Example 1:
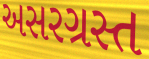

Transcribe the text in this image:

અસરગ્રસ્ત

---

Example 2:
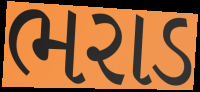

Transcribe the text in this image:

ભરાડ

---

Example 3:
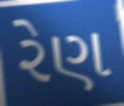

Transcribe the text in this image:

રેણ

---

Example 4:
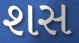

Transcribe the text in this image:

શસ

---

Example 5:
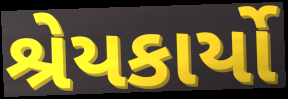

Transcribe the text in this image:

શ્રેયકાર્યો